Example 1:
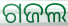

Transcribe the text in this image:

ଗଜଲ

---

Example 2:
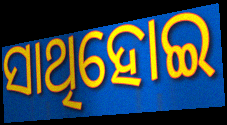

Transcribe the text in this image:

ସାଥିହୋଇ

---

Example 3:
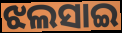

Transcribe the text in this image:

ଝଲସାଇ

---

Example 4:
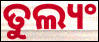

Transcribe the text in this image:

ତୁଲ୍ୟଂ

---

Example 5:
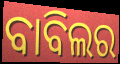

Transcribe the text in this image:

ବାବିଲର